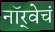
नॉर्वेचं